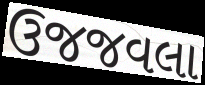
ઉજજવલા